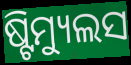
ଷ୍ଟିମ୍ୟୁଲସ